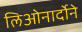
लिओनार्दोने